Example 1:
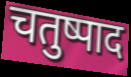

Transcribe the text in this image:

चतुष्पाद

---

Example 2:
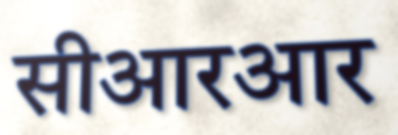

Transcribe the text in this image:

सीआरआर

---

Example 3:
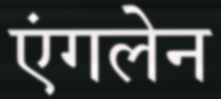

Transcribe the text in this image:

एंगलेन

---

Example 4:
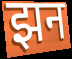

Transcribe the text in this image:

झन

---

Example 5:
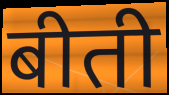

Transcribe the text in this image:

बीती